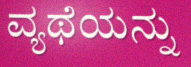
ವ್ಯಥೆಯನ್ನು